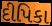
દીપિકા